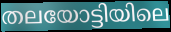
തലയോട്ടിയിലെ